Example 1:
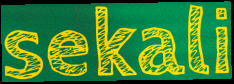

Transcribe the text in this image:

sekali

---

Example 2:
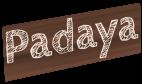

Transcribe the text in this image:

Padaya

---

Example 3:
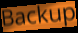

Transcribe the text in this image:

Backup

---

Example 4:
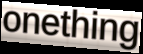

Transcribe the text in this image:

onething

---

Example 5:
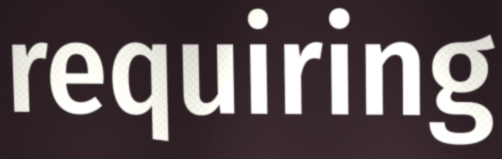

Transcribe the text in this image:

requiring